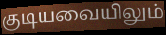
குடியவையிலும்